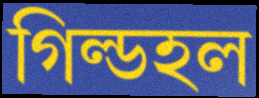
গিল্ডহল